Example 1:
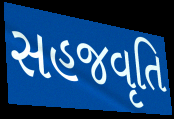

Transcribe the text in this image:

સહજવૃતિ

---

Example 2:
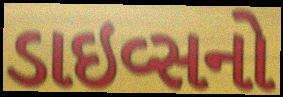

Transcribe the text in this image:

ડાઇવ્સનો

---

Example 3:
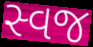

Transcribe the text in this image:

સ્વજ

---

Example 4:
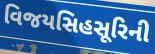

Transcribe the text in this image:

વિજયસિહસૂરિની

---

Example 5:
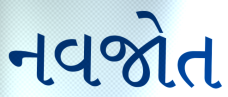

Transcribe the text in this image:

નવજોત